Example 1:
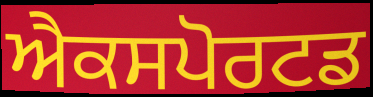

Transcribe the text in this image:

ਐਕਸਪੋਰਟਡ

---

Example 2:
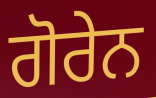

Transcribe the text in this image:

ਗੋਰੇਨ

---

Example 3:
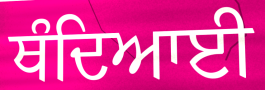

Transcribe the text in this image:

ਥੰਦਿਆਈ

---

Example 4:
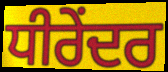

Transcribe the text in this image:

ਧੀਰੇਂਦਰ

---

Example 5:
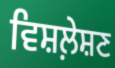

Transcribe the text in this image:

ਵਿਸ਼ਲ਼ੇਸ਼ਣ